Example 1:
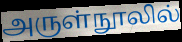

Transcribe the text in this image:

அருள்நூலில்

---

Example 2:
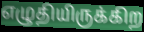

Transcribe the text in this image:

எழுதியிருக்கிற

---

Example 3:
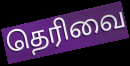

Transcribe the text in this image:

தெரிவை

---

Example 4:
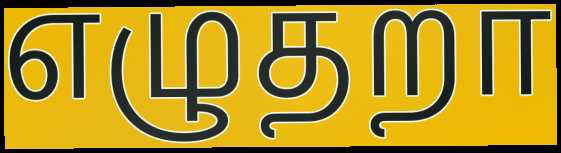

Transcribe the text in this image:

எழுதறா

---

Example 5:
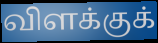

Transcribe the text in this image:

விளக்குக்